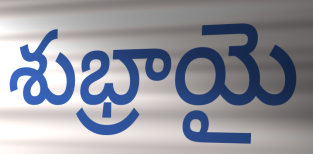
శుభ్రాయై